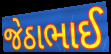
જેઠાભાઈ